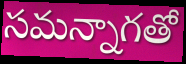
సమన్నాగతో